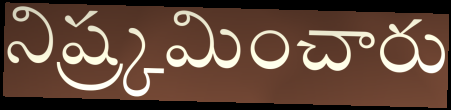
నిష్ర్కమించారు